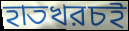
হাতখরচই